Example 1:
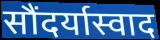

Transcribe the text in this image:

सौंदर्यास्वाद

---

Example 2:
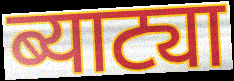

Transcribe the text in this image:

ब्याट्या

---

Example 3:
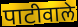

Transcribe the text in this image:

पाटीवाले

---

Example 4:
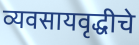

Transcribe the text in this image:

व्यवसायवृद्धीचे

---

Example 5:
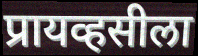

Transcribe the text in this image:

प्रायव्हसीला